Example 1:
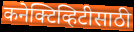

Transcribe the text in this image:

कनेक्टिव्हिटीसाठी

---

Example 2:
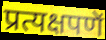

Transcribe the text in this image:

प्रत्यक्षपणें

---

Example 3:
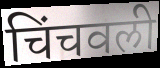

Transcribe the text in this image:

चिंचवली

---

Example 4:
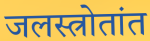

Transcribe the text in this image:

जलस्त्रोतांत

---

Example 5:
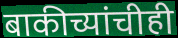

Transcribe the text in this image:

बाकीच्यांचीही